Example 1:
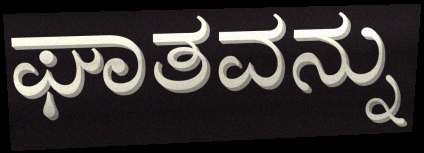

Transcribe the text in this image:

ಘಾತವನ್ನು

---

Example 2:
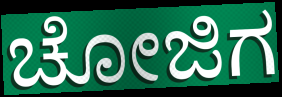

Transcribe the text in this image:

ಚೋಜಿಗ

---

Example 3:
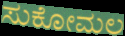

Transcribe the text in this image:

ಸುಕೋಮಲ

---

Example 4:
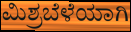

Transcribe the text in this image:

ಮಿಶ್ರಬೆಳೆಯಾಗಿ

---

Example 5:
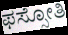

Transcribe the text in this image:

ಫಸ್ಸೋತಿ